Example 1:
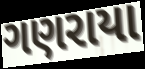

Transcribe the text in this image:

ગણરાયા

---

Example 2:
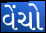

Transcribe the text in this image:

વેંચો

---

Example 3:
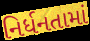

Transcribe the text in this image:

નિર્ધનતામાં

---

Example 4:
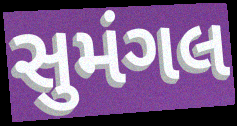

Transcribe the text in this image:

સુમંગલ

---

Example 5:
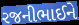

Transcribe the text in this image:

રજનીભાઈને